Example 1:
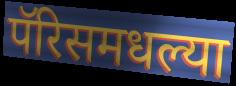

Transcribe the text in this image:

पॅरिसमधल्या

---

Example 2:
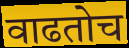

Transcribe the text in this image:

वाढतोच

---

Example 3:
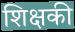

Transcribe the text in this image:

शिक्षकी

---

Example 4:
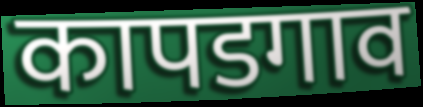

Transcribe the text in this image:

कापडगाव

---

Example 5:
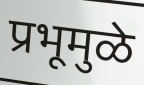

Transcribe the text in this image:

प्रभूमुळे